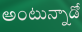
అంటున్నాడో